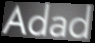
Adad